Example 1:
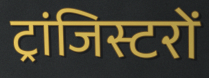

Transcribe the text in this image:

ट्रांजिस्टरों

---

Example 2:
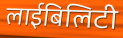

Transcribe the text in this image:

लाईबिलिटी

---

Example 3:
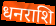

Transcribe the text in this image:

धनराशि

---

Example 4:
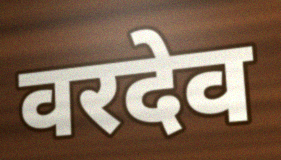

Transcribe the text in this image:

वरदेव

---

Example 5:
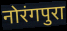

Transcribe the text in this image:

नोरंगपुरा